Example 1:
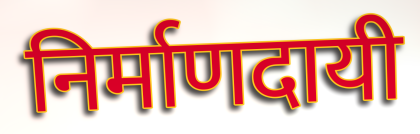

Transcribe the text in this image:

निर्माणदायी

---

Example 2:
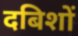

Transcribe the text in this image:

दबिशों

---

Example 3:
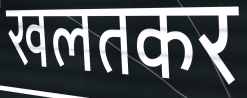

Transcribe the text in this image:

खलतकर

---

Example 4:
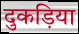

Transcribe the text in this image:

दुकड़िया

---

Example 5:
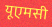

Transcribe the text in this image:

यूएमसी